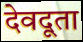
देवदूता